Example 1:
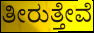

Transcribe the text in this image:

ತೀರುತ್ತೇವೆ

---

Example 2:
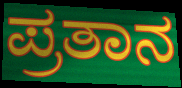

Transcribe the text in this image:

ಪ್ರತಾನ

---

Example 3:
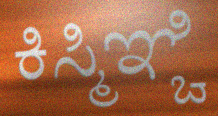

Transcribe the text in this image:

ಕಿಸ್ಮಿಞ್ಚಿ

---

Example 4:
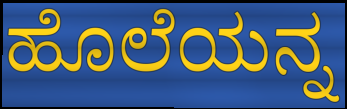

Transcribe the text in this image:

ಹೊಲೆಯನ್ನ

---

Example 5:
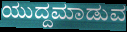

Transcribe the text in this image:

ಯುದ್ದಮಾಡುವ